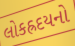
લોકહ્રદયનો